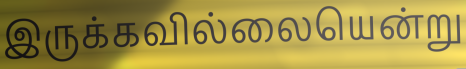
இருக்கவில்லையென்று